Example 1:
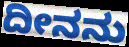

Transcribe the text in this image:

ದೀನನು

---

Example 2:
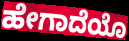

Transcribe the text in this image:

ಹೇಗಾದೆಯೊ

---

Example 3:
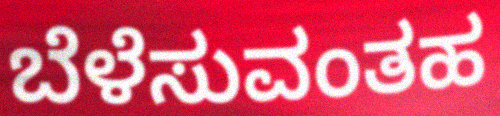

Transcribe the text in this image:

ಬೆಳೆಸುವಂತಹ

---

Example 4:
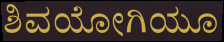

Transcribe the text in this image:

ಶಿವಯೋಗಿಯೂ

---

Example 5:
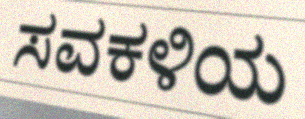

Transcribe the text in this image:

ಸವಕಳಿಯ